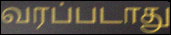
வரப்படாது